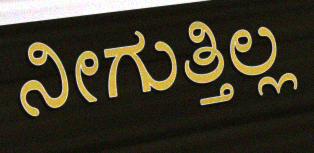
ನೀಗುತ್ತಿಲ್ಲ